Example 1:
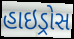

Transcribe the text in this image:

હાઇડ્રોસ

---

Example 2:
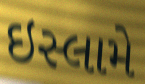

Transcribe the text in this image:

ઇસ્લામે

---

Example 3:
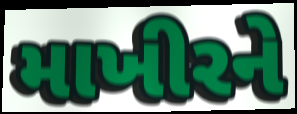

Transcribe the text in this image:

માખીરને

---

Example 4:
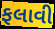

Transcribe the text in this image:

ફલાવી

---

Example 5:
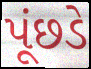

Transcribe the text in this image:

પૂંછડે